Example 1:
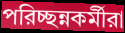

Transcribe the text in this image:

পরিচ্ছন্নকর্মীরা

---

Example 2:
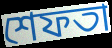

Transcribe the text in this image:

শেফতা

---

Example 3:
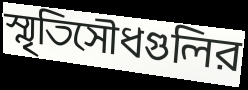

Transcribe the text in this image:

স্মৃতিসৌধগুলির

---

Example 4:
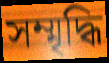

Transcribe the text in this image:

সম্মৃদ্ধি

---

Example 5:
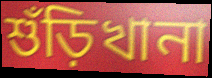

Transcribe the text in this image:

শুঁড়িখানা